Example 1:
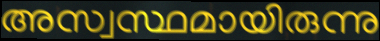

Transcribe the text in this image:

അസ്വസ്ഥമായിരുന്നു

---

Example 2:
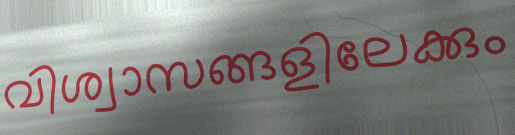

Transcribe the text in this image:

വിശ്വാസങ്ങളിലേക്കും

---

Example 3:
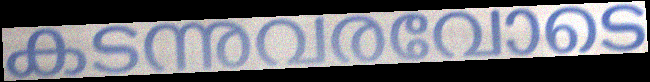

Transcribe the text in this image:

കടന്നുവരവോടെ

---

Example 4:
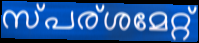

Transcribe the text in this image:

സ്പര്ശമേറ്റ്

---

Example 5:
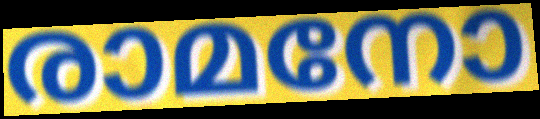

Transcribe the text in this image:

രാമനോ